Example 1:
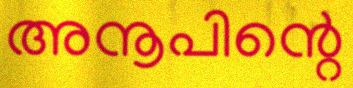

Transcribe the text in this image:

അനൂപിന്റെ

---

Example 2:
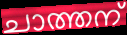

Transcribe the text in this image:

ചാത്തന്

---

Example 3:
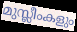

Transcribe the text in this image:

മുസ്ലീംകളും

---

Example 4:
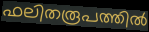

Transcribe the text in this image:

ഫലിതരൂപത്തിൽ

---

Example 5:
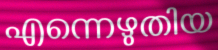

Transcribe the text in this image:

എന്നെഴുതിയ